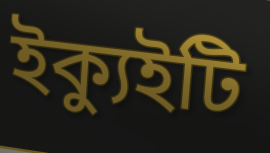
ইক্যুইটি